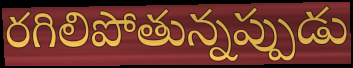
రగిలిపోతున్నప్పుడు